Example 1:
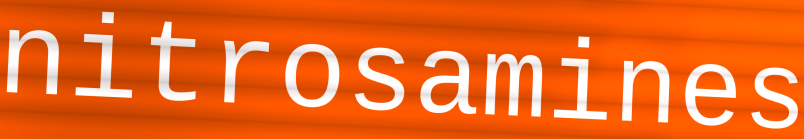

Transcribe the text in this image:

nitrosamines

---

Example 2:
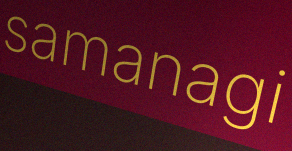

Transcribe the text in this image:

samanagi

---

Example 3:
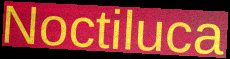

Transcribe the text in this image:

Noctiluca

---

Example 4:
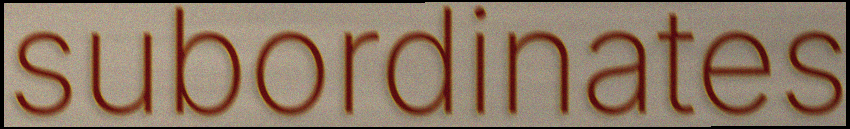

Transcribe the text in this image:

subordinates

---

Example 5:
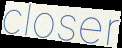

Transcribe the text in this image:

closer